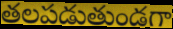
తలపడుతుండగా